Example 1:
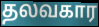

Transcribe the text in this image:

தலவகார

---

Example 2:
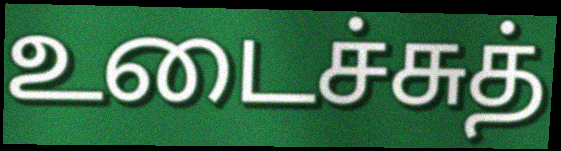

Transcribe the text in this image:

உடைச்சுத்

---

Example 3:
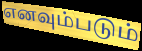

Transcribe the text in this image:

எனவும்படும்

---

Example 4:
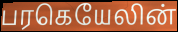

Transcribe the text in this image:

பரகெயேலின்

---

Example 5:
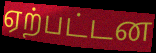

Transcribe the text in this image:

ஏற்பட்டன